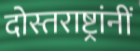
दोस्तराष्ट्रांनीं